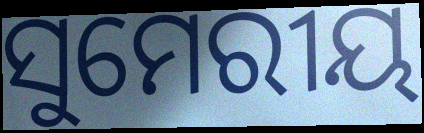
ସୁମେରୀୟ